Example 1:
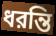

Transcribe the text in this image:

ধরন্তি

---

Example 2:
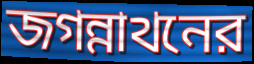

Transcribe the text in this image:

জগন্নাথনের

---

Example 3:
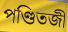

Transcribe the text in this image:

পণ্ডিতজী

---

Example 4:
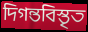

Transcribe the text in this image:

দিগন্তবিস্তৃত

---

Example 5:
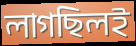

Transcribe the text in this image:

লাগছিলই